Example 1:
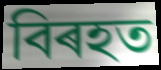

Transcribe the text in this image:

বিৰহত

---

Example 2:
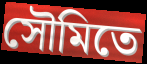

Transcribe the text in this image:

সৌমিতে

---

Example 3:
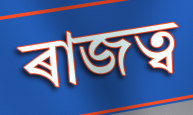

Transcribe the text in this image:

ৰাজত্ব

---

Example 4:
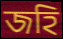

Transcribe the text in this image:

জহি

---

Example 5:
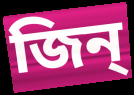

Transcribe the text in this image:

জিন্